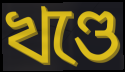
খণ্ডে